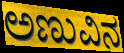
ಅಣುವಿನ